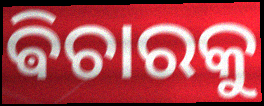
ଵିଚାରକୁ